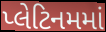
પ્લેટિનમમાં